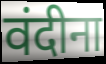
वंदीना